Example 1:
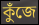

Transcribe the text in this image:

কুঁজে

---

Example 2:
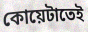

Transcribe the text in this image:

কোয়েটাতেই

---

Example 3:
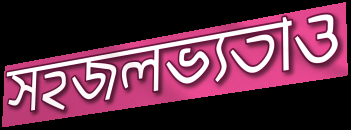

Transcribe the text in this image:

সহজলভ্যতাও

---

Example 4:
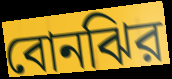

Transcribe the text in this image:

বোনঝির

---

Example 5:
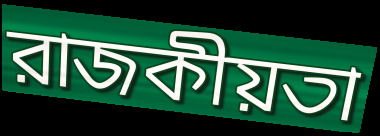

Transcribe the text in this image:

রাজকীয়তা